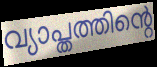
വ്യാപ്തത്തിന്റെ